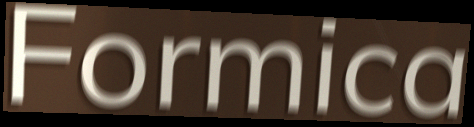
Formica